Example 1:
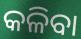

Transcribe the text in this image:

କଳିବା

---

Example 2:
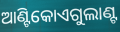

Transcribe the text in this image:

ଆଣ୍ଟିକୋଏଗୁଲାଣ୍ଟ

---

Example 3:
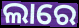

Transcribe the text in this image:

ଲାରେ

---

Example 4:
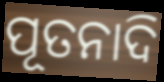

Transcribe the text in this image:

ପୂତନାଦି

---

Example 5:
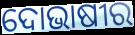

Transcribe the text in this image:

ଦୋଭାଷୀର